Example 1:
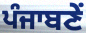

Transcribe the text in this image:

ਪੰਜਾਬਣੇਂ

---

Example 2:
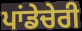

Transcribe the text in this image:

ਪਾਂਡੇਚੇਰੀ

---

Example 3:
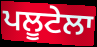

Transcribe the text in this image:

ਪਲੂਟੇਲਾ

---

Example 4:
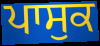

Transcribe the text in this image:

ਪਾਸੁਕ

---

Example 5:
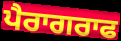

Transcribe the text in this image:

ਪੈਰਾਗਰਾਫ